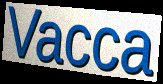
Vacca